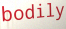
bodily